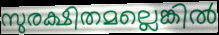
സുരക്ഷിതമല്ലെങ്കിൽ